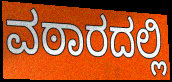
ವಠಾರದಲ್ಲಿ